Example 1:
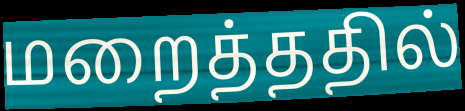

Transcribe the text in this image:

மறைத்ததில்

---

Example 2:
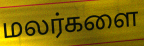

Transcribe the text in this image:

மலர்களை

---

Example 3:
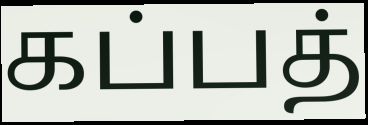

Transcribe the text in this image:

கப்பத்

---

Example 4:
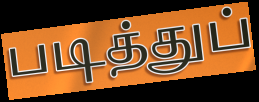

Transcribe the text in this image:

படித்துப்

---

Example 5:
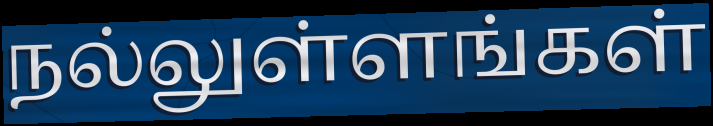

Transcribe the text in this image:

நல்லுள்ளங்கள்